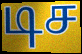
டிச